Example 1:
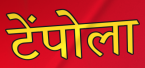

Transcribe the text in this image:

टेंपोला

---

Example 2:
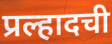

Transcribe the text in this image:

प्रल्हादची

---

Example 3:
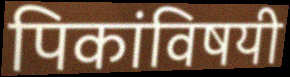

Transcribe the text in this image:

पिकांविषयी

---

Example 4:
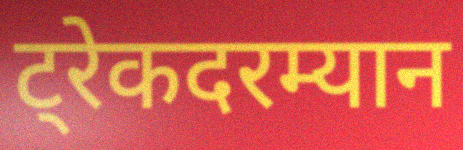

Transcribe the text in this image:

ट्रेकदरम्यान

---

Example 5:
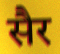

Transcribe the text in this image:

सैर